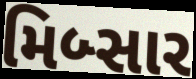
મિબ્સાર